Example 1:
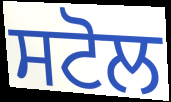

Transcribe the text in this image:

ਸਟੋਲ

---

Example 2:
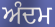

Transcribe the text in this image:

ਅੰਦਮ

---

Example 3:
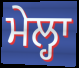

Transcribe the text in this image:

ਮੇਲ੍ਹਾ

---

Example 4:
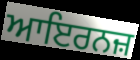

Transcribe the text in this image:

ਆਇਰਨਜ਼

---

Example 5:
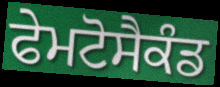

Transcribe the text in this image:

ਫੇਮਟੋਸੈਕੰਡ